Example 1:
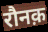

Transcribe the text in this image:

रौनक़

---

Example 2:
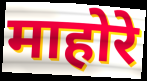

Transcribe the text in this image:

माहोरे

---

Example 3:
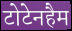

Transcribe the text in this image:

टोटेनहैम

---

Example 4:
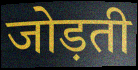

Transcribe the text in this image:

जोड़ती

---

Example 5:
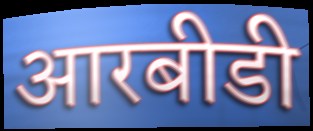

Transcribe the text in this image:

आरबीडी